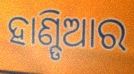
ହାଣ୍ଡିଆର